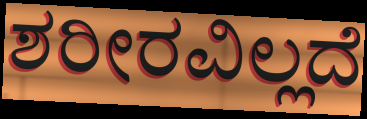
ಶರೀರವಿಲ್ಲದೆ